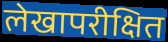
लेखापरीक्षित